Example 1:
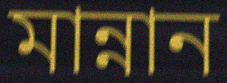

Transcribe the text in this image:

মান্নান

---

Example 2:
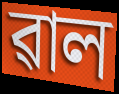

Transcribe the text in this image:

ৱাল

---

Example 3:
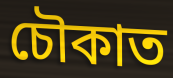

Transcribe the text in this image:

চৌকাত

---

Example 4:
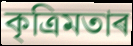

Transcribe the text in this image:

কৃত্ৰিমতাৰ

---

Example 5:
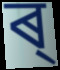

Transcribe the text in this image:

ৰ্